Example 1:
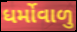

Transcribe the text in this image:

ધર્મોવાળુ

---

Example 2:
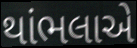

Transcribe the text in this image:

થાંભલાએ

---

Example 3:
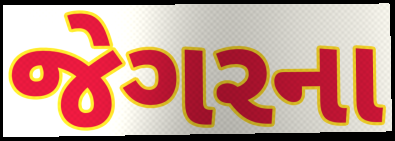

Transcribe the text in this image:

જેગરના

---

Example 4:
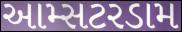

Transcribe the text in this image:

આમ્સટરડામ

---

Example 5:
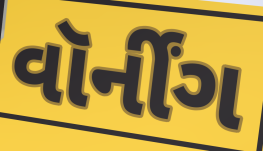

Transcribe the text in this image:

વૉર્નીંગ